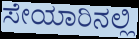
ಸೇಯಾರಿನಲ್ಲಿ